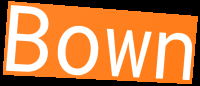
Bown